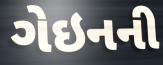
ગેઇનની